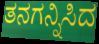
ತನಗನ್ನಿಸಿದ